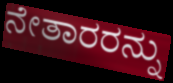
ನೇತಾರರನ್ನು